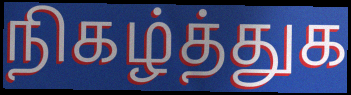
நிகழ்த்துக